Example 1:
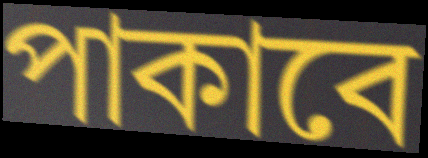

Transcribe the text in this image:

পাকাবে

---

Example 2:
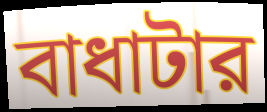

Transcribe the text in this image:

বাধাটার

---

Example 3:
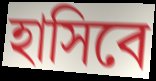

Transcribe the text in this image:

হাসিবে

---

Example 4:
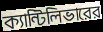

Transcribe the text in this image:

ক্যান্টিলিভারের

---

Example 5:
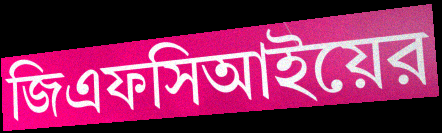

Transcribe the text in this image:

জিএফসিআইয়ের